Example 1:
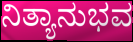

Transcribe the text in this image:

ನಿತ್ಯಾನುಭವ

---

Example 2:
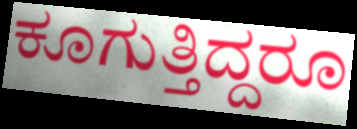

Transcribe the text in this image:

ಕೂಗುತ್ತಿದ್ದರೂ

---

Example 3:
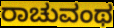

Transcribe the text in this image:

ರಾಚುವಂಥ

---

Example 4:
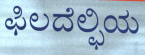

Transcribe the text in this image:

ಫಿಲದೆಲ್ಫಿಯ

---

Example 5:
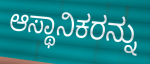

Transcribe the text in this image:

ಆಸ್ಥಾನಿಕರನ್ನು